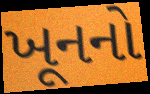
ખૂનનો